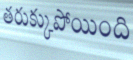
తరుక్కుపోయింది